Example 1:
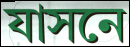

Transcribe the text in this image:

যাসনে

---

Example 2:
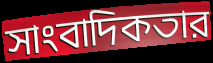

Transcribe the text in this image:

সাংবাদিকতার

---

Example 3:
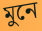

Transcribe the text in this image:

মুনে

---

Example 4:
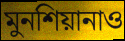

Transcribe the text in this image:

মুনশিয়ানাও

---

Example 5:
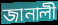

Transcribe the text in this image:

জানালী